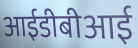
आईडीबीआई